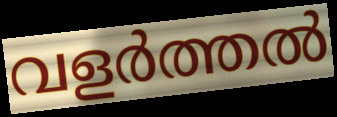
വളർത്തൽ